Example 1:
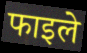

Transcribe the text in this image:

फाइले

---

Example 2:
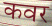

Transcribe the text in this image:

कवर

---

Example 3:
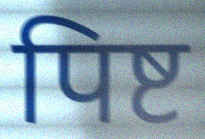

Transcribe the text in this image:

पिष्ट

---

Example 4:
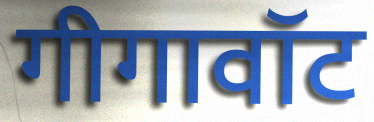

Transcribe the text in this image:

गीगावॉट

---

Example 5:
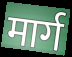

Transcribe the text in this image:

मार्ग